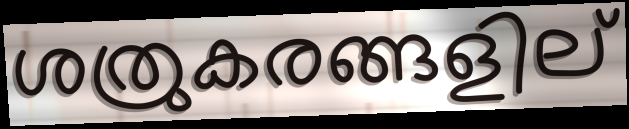
ശത്രുകരങ്ങളില്